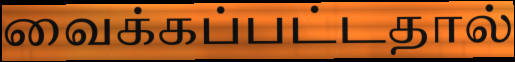
வைக்கப்பட்டதால்